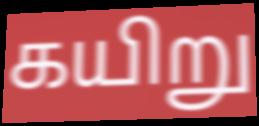
கயிறு